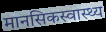
मानसिकस्वास्थ्य